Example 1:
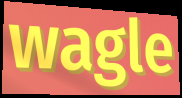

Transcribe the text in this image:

wagle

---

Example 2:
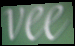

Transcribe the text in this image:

vee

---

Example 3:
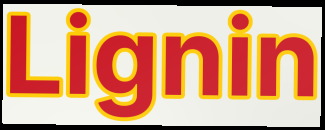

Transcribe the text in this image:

Lignin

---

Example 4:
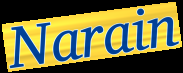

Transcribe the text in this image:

Narain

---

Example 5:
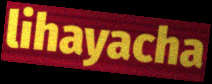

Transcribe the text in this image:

lihayacha